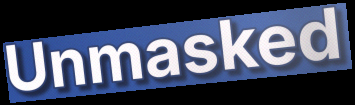
Unmasked